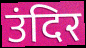
उंदिर